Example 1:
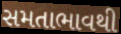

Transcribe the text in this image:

સમતાભાવથી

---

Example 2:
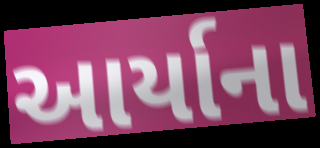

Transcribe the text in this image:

આર્યાના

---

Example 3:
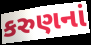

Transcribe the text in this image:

કરુણનાં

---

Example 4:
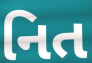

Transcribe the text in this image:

નિત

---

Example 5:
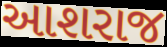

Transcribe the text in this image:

આશરાજ